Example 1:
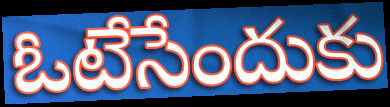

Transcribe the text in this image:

ఓటేసేందుకు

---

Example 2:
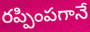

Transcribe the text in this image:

రప్పింపగానే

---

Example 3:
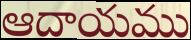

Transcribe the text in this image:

ఆదాయము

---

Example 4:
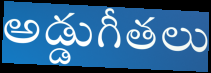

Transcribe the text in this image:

అడ్డుగీతలు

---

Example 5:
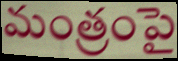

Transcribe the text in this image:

మంత్రంపై